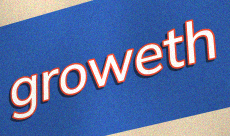
groweth